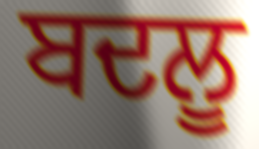
ਬਦਲੂ